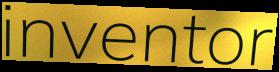
inventor